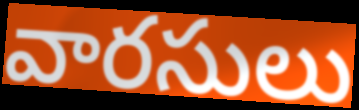
వారసులు